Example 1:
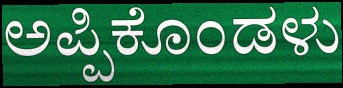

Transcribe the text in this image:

ಅಪ್ಪಿಕೊಂಡಳು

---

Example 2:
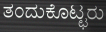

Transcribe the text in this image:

ತಂದುಕೊಟ್ಟರು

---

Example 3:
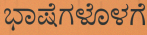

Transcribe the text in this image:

ಭಾಷೆಗಳೊಳಗೆ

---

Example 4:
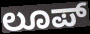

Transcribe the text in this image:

ಲೂಪ್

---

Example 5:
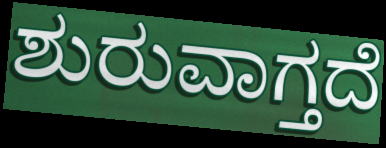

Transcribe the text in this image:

ಶುರುವಾಗ್ತದೆ